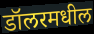
डॉलरमधील